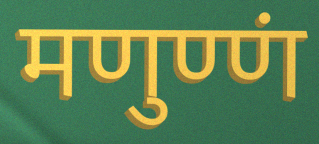
मणुण्णं